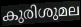
കുരിശുമല